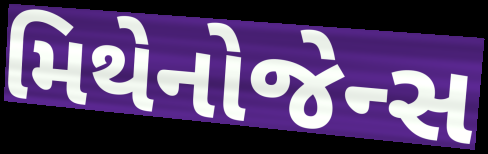
મિથેનોજેન્સ